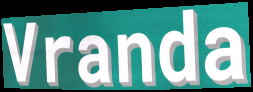
Vranda